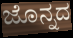
ಜೊನ್ನದ